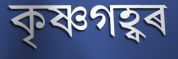
কৃষ্ণগহ্বৰ